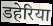
डहेरिया